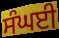
ਸੰਘਈ